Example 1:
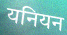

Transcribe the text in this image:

यनियन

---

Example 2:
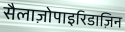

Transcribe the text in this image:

सैलाज़ोपाइरिडाज़िन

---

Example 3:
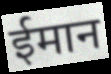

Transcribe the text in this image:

ईमान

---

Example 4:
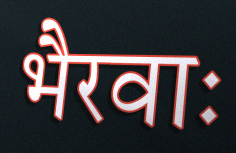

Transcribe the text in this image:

भैरवाः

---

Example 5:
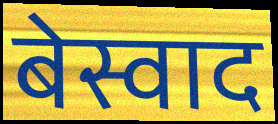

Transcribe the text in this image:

बेस्वाद